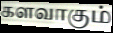
களவாகும்